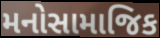
મનોસામાજિક